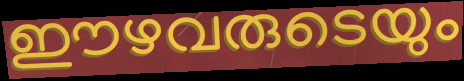
ഈഴവരുടെയും